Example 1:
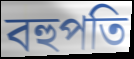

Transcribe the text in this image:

বহুপতি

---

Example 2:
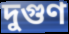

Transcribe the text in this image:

দুগুণ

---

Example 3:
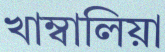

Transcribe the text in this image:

খাম্বালিয়া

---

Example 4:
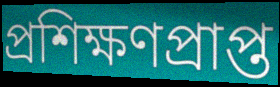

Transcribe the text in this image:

প্ৰশিক্ষণপ্ৰাপ্ত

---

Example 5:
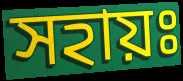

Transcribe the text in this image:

সহায়ঃ